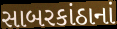
સાબરકાંઠાનાં